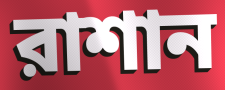
রাশান